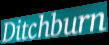
Ditchburn